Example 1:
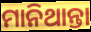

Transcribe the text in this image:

ମାନିଥାନ୍ତା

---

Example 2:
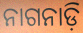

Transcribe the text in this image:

ନାଗନାଡ଼ି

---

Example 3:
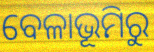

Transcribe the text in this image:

ବେଳାଭୂମିରୁ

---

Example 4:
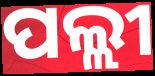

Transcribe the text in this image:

ପଲ୍ଲୀ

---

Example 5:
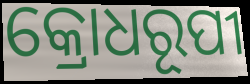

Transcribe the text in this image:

କ୍ରୋଧରୂପୀ